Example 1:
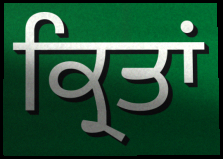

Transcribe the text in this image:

ਕ੍ਰਿਤਾਂ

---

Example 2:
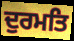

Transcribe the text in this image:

ਦੁਰਮਤਿ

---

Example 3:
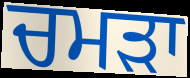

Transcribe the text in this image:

ਚਮੜਾ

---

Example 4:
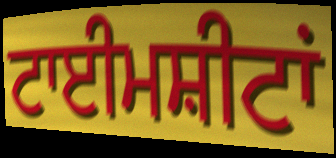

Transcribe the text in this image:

ਟਾਈਮਸ਼ੀਟਾਂ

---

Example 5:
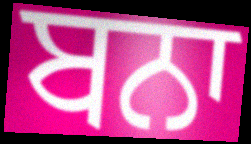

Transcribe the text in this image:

ਬਨਾ